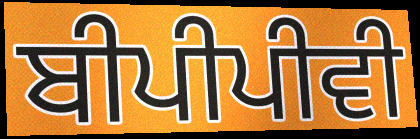
ਬੀਪੀਪੀਵੀ